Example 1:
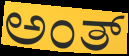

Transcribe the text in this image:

ಅಂತ್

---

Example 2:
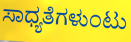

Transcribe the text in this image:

ಸಾಧ್ಯತೆಗಳುಂಟು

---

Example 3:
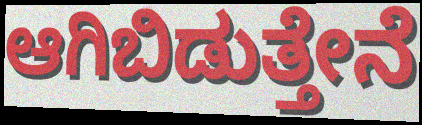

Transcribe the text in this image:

ಆಗಿಬಿಡುತ್ತೇನೆ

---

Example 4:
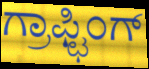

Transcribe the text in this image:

ಗ್ರಾಫ್ಟಿಂಗ್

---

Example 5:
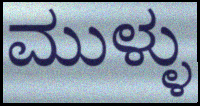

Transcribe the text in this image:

ಮುಳ್ಳು